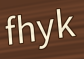
fhyk